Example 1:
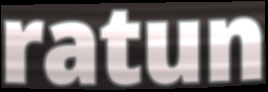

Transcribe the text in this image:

ratun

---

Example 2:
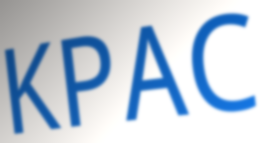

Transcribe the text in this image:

KPAC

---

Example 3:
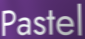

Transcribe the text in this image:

Pastel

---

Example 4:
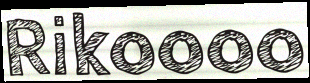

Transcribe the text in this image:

Rikoooo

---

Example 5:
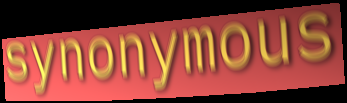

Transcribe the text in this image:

synonymous